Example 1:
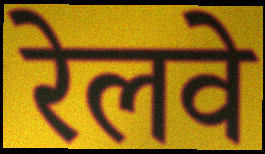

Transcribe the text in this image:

रेलवे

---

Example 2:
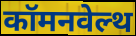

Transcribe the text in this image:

कॉमनवेल्थ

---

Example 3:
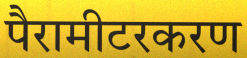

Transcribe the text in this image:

पैरामीटरकरण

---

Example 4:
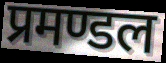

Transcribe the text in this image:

प्रमण्डल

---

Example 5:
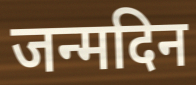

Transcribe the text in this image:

जन्मदिन